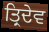
ਤ੍ਰਿਦੇਵ